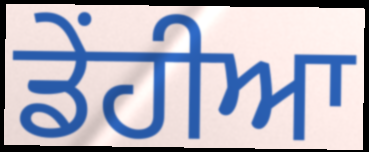
ਡੇਂਹੀਆ